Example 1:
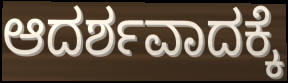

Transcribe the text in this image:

ಆದರ್ಶವಾದಕ್ಕೆ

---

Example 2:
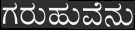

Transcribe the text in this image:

ಗರುಹುವೆನು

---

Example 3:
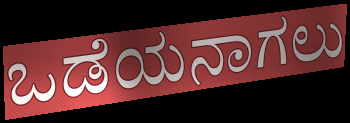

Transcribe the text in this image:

ಒಡೆಯನಾಗಲು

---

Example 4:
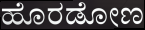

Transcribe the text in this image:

ಹೊರಡೋಣ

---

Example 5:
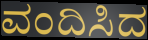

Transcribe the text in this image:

ವಂದಿಸಿದ